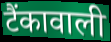
टैंकावाली